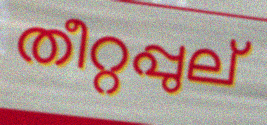
തീറ്റപ്പുല്